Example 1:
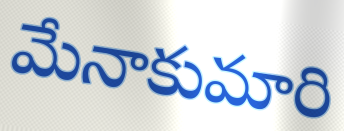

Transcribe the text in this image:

మేనాకుమారి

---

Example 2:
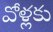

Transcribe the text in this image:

వోళ్లకు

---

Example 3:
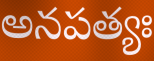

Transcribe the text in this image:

అనపత్యః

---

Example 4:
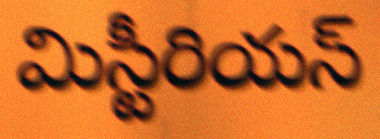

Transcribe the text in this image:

మిస్టీరియస్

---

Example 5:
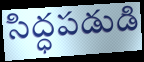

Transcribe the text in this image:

సిద్ధపడుడి